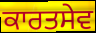
ਕਾਰਤਸੇਵ